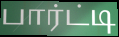
பார்ட்டி